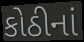
કોઠીનાં